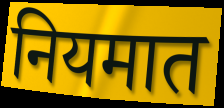
नियमात